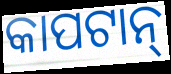
କାପଟାନ୍